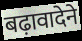
बढ़ावादेने